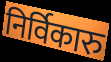
निर्विकारु